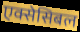
एक्सेसिबल